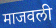
माजवली